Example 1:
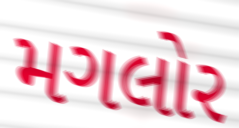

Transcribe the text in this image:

મગલોર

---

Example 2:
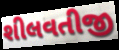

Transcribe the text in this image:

શીલવતીજી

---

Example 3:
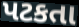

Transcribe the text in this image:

પટકતા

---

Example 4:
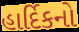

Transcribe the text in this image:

હાર્દિકનો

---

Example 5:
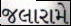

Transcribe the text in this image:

જલારામે